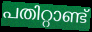
പതിറ്റാണ്ട്